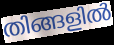
തിങ്ങളിൽ